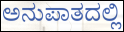
ಅನುಪಾತದಲ್ಲಿ